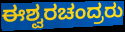
ಈಶ್ವರಚಂದ್ರರು